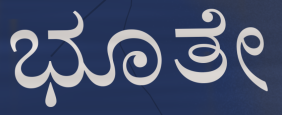
ಭೂತೇ